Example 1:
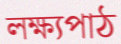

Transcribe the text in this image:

লক্ষ্যপাঠ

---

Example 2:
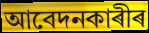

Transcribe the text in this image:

আবেদনকাৰীৰ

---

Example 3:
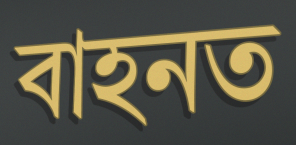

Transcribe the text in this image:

বাহনত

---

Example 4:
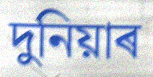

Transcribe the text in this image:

দুনিয়াৰ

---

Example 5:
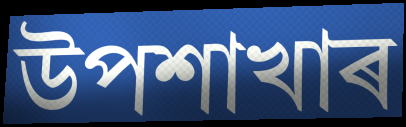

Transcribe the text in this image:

উপশাখাৰ